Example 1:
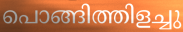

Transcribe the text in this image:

പൊങ്ങിത്തിളച്ചു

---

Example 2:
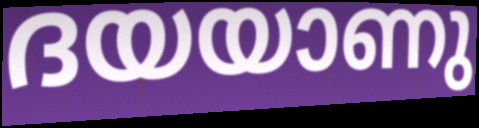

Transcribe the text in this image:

ദയയാണു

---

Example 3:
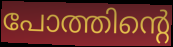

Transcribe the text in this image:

പോത്തിന്റെ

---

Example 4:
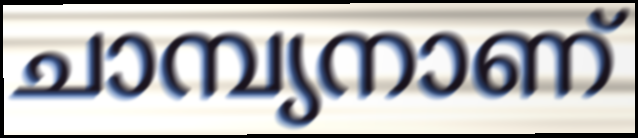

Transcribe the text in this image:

ചാമ്പ്യനാണ്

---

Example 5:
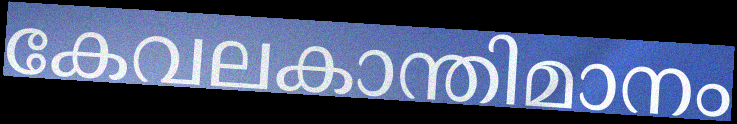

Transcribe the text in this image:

കേവലകാന്തിമാനം